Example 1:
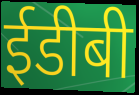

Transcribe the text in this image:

ईडीबी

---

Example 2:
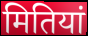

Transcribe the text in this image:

मितियां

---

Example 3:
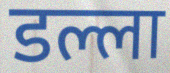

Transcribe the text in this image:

डल्ला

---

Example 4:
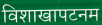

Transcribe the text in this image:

विशाखापटनम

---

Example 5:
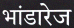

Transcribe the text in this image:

भांडारेज